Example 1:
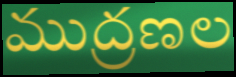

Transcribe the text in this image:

ముద్రణల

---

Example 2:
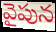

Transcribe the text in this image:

వైపున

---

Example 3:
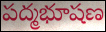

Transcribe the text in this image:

పద్మభూషణ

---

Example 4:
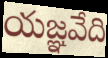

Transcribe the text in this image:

యజ్ఞవేది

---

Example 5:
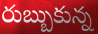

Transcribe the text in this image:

రుబ్బుకున్న